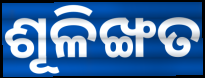
ଶୂଳିଙ୍ଖତ